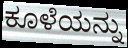
ಕೂಳೆಯನ್ನು